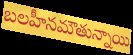
బలహీనమౌతున్నాయి